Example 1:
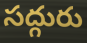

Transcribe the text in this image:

సద్గురు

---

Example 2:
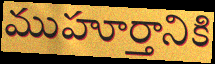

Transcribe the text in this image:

ముహూర్తానికి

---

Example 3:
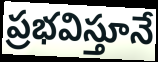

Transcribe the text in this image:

ప్రభవిస్తూనే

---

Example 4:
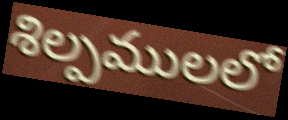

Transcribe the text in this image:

శిల్పములలో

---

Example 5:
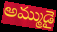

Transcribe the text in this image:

అమ్ముడై